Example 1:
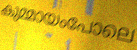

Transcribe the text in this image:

കുമ്മായംപോലെ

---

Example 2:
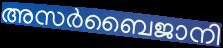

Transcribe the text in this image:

അസർബൈജാനി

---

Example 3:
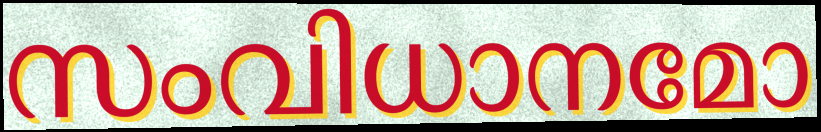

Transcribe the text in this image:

സംവിധാനമോ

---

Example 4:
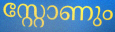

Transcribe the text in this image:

സ്റ്റോണും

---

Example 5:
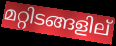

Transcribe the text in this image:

മറ്റിടങ്ങളില്